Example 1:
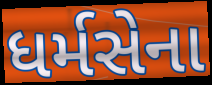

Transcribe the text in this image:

ધર્મસેના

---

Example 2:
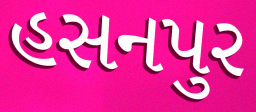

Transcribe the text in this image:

હસનપુર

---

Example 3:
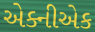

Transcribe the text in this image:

એક્નીએક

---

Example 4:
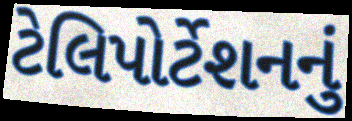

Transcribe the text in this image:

ટેલિપોર્ટેશનનું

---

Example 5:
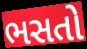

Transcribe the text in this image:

ભસતો